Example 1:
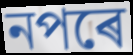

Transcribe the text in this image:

নপৰে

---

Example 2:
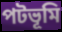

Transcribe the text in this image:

পটভূমি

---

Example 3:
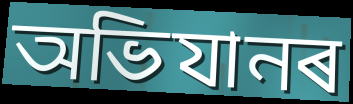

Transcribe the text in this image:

অভিযানৰ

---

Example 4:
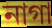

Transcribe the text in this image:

নাগা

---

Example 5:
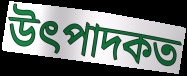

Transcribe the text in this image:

উৎপাদকত